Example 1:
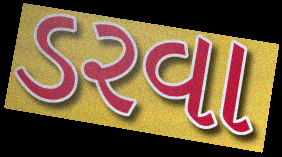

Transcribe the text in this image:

ડરવા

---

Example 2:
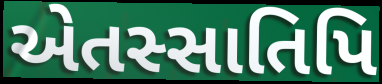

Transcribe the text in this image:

એતસ્સાતિપિ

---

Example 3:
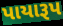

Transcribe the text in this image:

પાયારૂપ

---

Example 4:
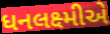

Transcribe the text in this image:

ધનલક્ષ્મીએ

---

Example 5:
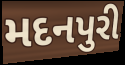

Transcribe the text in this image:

મદનપુરી